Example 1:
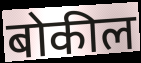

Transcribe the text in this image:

बोकील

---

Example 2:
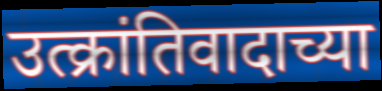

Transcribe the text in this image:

उत्क्रांतिवादाच्या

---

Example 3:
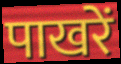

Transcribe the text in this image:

पाखरें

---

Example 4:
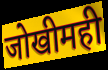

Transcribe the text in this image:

जोखीमही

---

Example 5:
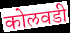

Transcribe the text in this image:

कोलवडी